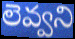
లెవ్వని